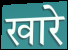
खारे